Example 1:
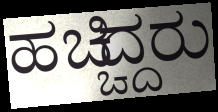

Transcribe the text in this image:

ಹಚ್ಚಿದ್ದರು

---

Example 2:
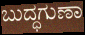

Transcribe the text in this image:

ಬುದ್ಧಗುಣಾ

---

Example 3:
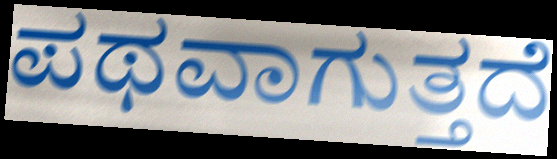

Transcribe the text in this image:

ಪಥವಾಗುತ್ತದೆ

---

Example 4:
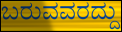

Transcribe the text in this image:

ಬರುವವರದ್ದು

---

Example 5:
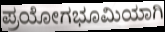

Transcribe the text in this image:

ಪ್ರಯೋಗಭೂಮಿಯಾಗಿ